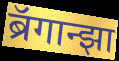
ब्रॅगान्झा